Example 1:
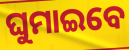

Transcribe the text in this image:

ଘୁମାଇବେ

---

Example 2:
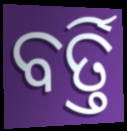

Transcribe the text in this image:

ବର୍ତ୍ତି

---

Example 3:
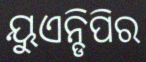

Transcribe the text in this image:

ୟୁଏନ୍ଡିପିର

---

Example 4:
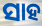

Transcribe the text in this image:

ସାହ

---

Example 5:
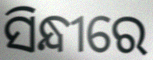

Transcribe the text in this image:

ସିନ୍ଧୀରେ